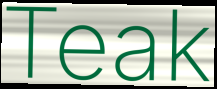
Teak